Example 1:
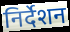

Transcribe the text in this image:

निर्देशन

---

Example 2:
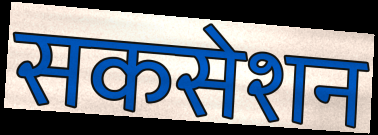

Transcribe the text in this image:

सकसेशन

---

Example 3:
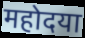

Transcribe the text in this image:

महोदया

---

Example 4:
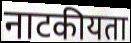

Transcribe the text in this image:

नाटकीयता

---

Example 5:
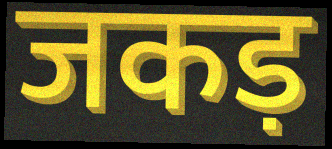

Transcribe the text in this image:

जकड़